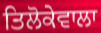
ਤਿਲੋਕੇਵਾਲਾ